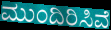
ಮುಂದಿರಿಸಿವೆ